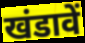
खंडावें